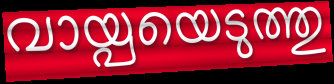
വായ്പയെടുത്തു